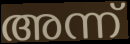
അന്ന്